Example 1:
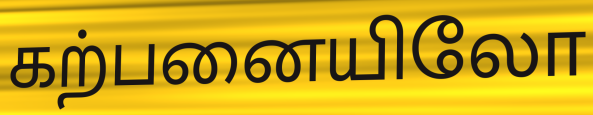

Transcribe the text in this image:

கற்பனையிலோ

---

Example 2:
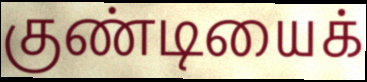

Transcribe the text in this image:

குண்டியைக்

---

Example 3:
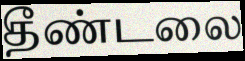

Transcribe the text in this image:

தீண்டலை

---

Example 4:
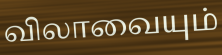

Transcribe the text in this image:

விலாவையும்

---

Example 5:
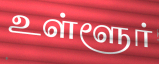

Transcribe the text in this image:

உள்ளூர்